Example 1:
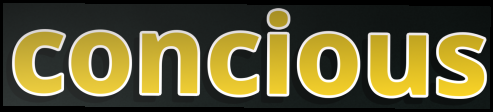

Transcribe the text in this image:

concious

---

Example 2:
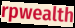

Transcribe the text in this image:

rpwealth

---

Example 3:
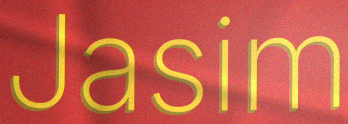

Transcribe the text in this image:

Jasim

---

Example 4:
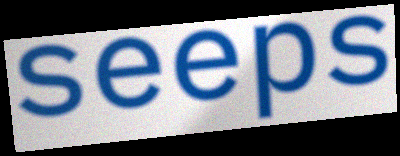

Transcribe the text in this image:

seeps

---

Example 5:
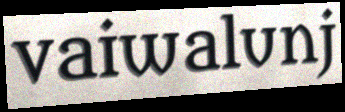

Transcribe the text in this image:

vaiwalunj